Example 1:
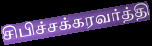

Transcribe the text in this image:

சிபிச்சக்கரவர்த்தி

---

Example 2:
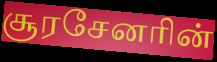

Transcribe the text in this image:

சூரசேனரின்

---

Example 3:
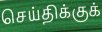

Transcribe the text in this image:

செய்திக்குக்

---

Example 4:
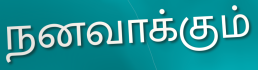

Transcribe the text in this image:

நனவாக்கும்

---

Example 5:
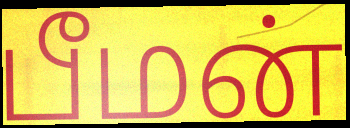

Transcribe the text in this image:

பீமன்